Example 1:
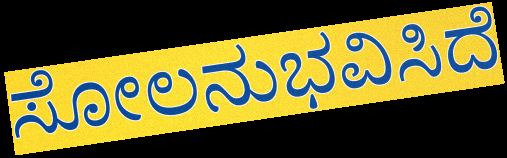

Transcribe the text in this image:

ಸೋಲನುಭವಿಸಿದೆ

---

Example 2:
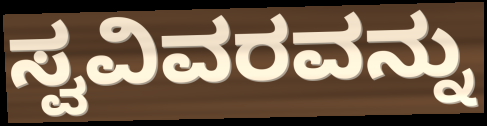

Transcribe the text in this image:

ಸ್ವವಿವರವನ್ನು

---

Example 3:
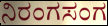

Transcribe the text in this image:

ನಿರಂಗಸಂಗ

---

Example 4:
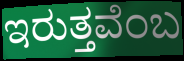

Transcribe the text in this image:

ಇರುತ್ತವೆಂಬ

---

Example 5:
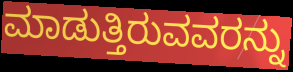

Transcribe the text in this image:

ಮಾಡುತ್ತಿರುವವರನ್ನು